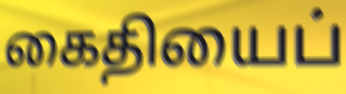
கைதியைப்